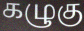
கழுகு